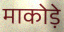
माकोड़े